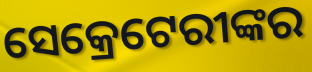
ସେକ୍ରେଟେରୀଙ୍କର